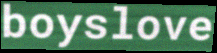
boyslove